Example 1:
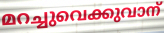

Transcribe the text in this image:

മറച്ചുവെക്കുവാന്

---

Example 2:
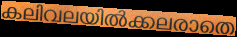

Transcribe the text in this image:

കലിവലയിൽക്കലരാതെ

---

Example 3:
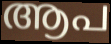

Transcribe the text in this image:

ആപ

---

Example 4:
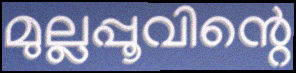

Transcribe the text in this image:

മുല്ലപ്പൂവിന്റെ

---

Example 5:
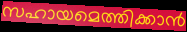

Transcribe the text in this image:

സഹായമെത്തിക്കാൻ